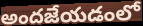
అందజేయడంలో